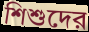
শিশুদের